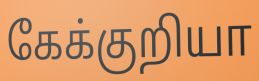
கேக்குறியா